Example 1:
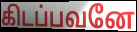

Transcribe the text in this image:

கிடப்பவனே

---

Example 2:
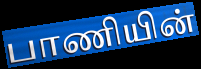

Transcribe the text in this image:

பாணியின்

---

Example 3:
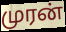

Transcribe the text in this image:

முரன்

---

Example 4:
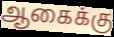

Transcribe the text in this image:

ஆகைக்கு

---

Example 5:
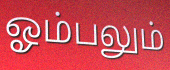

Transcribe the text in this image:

ஓம்பலும்